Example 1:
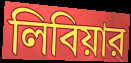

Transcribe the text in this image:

লিবিয়ার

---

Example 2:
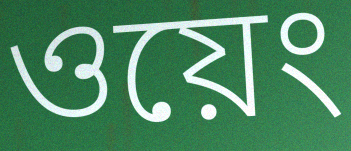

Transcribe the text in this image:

ওয়েং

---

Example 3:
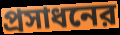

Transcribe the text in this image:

প্রসাধনের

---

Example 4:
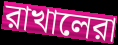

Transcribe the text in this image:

রাখালেরা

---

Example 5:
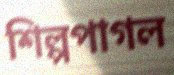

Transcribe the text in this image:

শিল্পপাগল